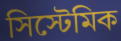
সিস্টেমিক